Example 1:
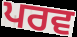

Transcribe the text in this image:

ਪਰਵ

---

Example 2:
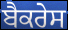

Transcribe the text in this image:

ਬੈਕਰੇਸ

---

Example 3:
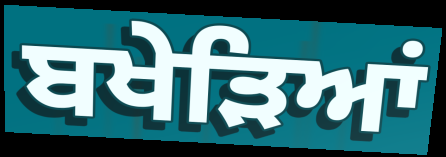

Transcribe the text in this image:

ਬਖੇੜਿਆਂ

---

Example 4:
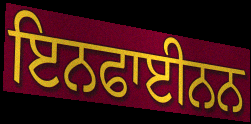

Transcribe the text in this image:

ਇਨਫਾਈਨਨ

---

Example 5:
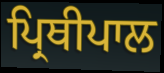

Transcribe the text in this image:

ਪ੍ਰਿਥੀਪਾਲ